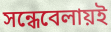
সন্ধেবেলায়ই